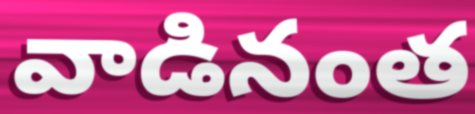
వాడినంత